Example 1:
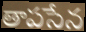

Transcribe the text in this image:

తాపసేన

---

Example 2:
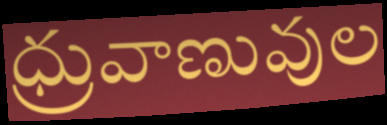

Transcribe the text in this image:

ధ్రువాణువుల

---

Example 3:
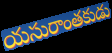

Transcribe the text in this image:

యసురాంతకుడు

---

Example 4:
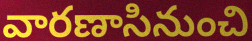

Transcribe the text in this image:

వారణాసినుంచి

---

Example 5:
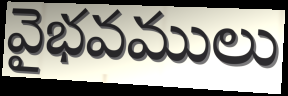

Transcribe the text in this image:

వైభవములు